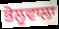
ਭੋਲੂਵਾਲਾ